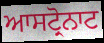
ਆਸਟ੍ਰੋਨਾਟ